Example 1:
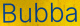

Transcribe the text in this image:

Bubba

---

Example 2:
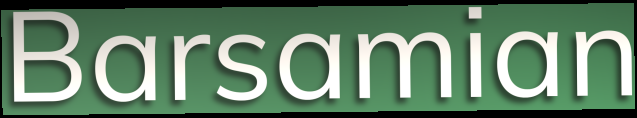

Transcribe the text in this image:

Barsamian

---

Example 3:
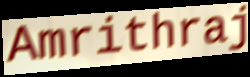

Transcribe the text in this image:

Amrithraj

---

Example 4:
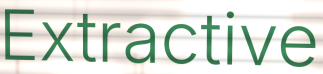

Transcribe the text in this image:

Extractive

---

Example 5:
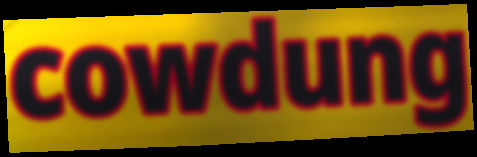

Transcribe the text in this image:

cowdung